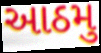
આઠમુ